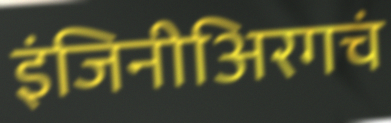
इंजिनीअिरगचं